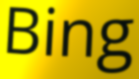
Bing